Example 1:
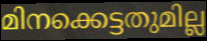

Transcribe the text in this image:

മിനക്കെട്ടതുമില്ല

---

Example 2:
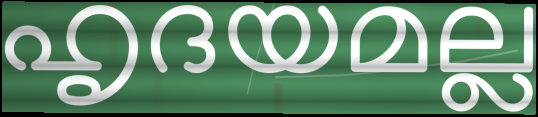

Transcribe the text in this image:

ഹൃദയമല്ല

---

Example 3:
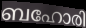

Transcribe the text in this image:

ബഹോരി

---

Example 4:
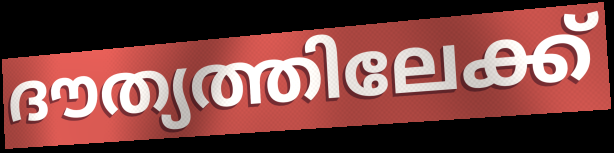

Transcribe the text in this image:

ദൗത്യത്തിലേക്ക്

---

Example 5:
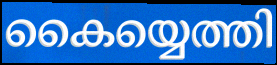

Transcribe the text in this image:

കൈയ്യെത്തി